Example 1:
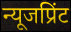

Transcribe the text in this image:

न्यूजप्रिंट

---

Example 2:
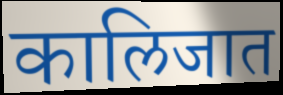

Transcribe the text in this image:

कालिजात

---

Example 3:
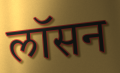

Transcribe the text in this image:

लॉसन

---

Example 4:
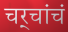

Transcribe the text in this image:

चर्चांचं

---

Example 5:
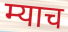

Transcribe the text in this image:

म्याच